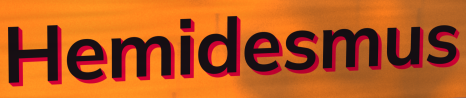
Hemidesmus